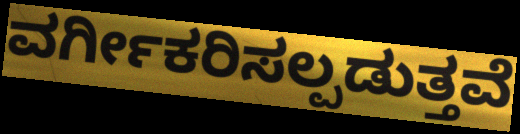
ವರ್ಗೀಕರಿಸಲ್ಪಡುತ್ತವೆ